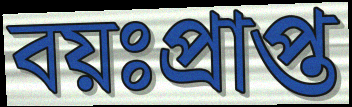
বয়ঃপ্রাপ্ত